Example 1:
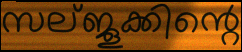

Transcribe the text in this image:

സല്ജൂക്കിന്റെ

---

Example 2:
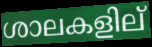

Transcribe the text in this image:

ശാലകളില്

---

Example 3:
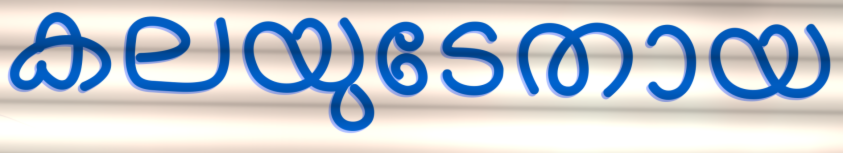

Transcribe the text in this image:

കലയുടേതായ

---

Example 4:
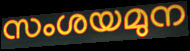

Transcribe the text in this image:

സംശയമുന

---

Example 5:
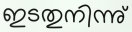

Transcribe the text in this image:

ഇടതുനിന്നു്